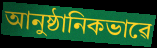
আনুষ্ঠানিকভাৱে